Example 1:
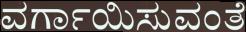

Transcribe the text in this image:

ವರ್ಗಾಯಿಸುವಂತೆ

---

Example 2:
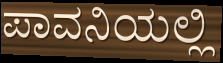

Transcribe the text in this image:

ಪಾವನಿಯಲ್ಲಿ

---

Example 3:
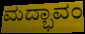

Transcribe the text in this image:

ಮದ್ಭಾವಂ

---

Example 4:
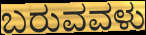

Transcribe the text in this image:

ಬರುವವಳು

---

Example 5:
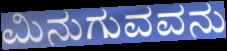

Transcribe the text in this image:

ಮಿನುಗುವವನು